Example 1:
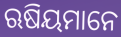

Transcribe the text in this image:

ଋଷିୟମାନେ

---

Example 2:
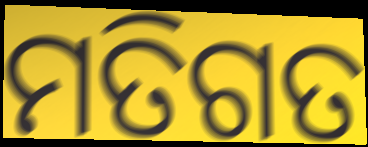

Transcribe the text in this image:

ମତିଗତ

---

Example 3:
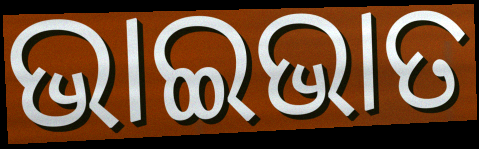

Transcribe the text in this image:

ଭାଇଭାତ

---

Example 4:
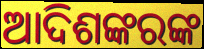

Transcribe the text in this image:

ଆଦିଶଙ୍କରଙ୍କ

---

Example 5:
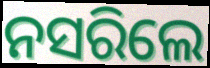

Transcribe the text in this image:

ନସରିଲେ